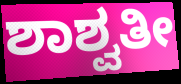
ಶಾಶ್ವತೀ